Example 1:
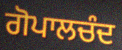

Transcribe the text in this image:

ਗੋਪਾਲਚੰਦ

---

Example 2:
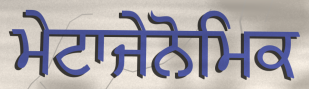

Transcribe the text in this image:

ਮੇਟਾਜੇਨੋਮਿਕ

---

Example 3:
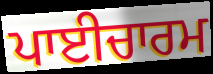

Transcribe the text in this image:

ਪਾਈਚਾਰਮ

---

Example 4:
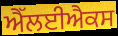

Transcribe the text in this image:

ਐੱਲਈਐਕਸ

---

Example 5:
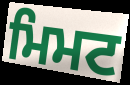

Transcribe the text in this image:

ਮਿਮਟ